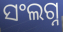
ସଂଲଗ୍ନ